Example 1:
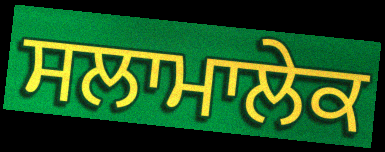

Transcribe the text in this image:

ਸਲਾਮਾਲੇਕ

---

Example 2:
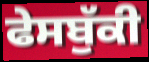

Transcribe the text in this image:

ਫੇਸਬੁੱਕੀ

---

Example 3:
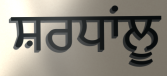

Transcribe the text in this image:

ਸ਼ਰਧਾਂਲੂ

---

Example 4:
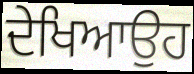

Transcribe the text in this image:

ਦੇਖਿਆਉਹ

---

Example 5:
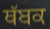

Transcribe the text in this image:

ਥੱਬਕ